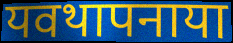
यवथापनाया